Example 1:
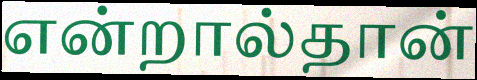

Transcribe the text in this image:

என்றால்தான்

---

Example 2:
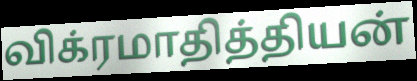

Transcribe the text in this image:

விக்ரமாதித்தியன்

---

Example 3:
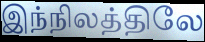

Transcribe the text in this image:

இந்நிலத்திலே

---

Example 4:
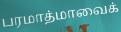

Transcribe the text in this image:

பரமாத்மாவைக்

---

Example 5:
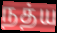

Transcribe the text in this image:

நத்ய